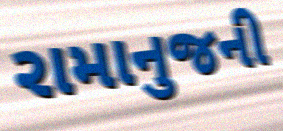
રામાનુજની